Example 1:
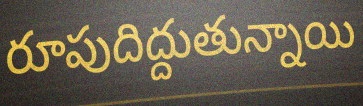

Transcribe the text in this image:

రూపుదిద్దుతున్నాయి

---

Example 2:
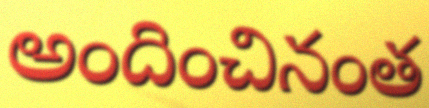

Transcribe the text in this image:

అందించినంత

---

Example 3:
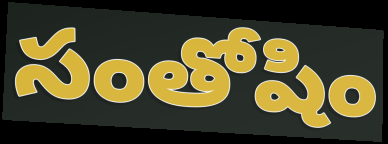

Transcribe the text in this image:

సంతోషిం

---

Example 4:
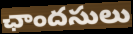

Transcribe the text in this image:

ఛాందసులు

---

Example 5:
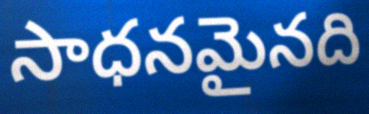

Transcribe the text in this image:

సాధనమైనది